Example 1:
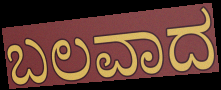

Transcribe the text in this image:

ಬಲವಾದ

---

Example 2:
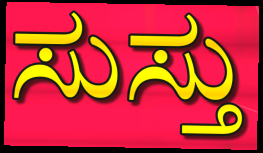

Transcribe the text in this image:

ಸುಸ್ತು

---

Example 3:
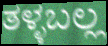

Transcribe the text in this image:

ತಳ್ಳಬಲ್ಲ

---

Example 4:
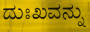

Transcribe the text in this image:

ದುಃಖವನ್ನು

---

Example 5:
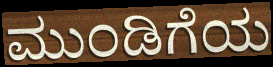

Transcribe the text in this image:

ಮುಂಡಿಗೆಯ